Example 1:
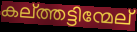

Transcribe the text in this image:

കല്ത്തട്ടിന്മേല്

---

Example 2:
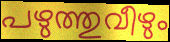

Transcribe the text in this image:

പഴുത്തുവീഴും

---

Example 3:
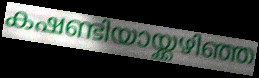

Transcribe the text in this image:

കഷണ്ടിയായ്ക്കഴിഞ്ഞ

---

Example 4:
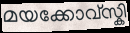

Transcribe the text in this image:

മയക്കോവ്സ്കി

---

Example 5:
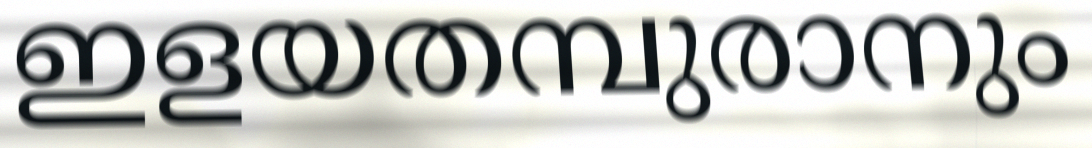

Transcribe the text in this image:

ഇളയതമ്പുരാനും